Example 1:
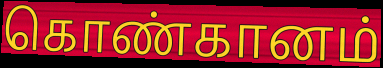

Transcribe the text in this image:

கொண்கானம்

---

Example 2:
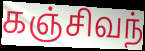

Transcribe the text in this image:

கஞ்சிவந்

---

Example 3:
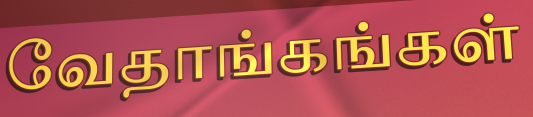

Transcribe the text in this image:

வேதாங்கங்கள்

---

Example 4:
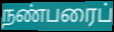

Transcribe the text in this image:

நண்பரைப்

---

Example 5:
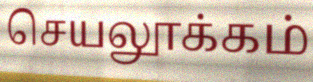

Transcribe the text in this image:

செயலூக்கம்